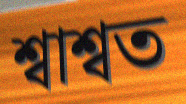
শ্বাশ্বত